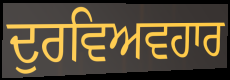
ਦੁਰਵਿਅਵਹਾਰ